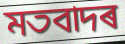
মতবাদৰ